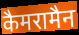
कैमरामैन